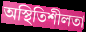
অস্থিতিশীলতা